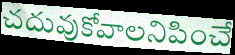
చదువుకోవాలనిపించే